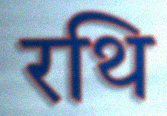
रथि